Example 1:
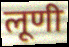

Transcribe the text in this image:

लूणी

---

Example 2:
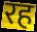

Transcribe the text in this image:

रह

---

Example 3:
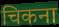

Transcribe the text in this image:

चिकना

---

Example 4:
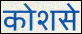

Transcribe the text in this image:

कोशसे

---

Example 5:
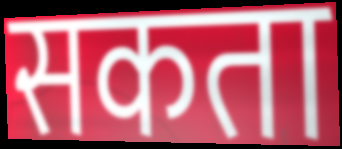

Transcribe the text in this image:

सकता